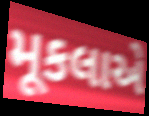
મૂકલાએ